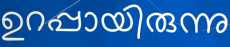
ഉറപ്പായിരുന്നു